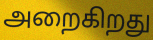
அறைகிறது